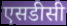
एसडीसी